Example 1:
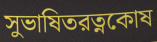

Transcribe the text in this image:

সুভাষিতরত্নকোষ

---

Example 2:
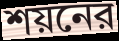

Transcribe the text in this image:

শয়নের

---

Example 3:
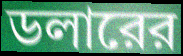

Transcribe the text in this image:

ডলারের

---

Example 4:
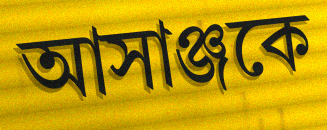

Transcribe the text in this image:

আসাঞ্জকে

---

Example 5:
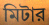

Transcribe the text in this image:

মিটার